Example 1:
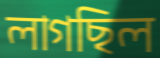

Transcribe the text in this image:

লাগছিল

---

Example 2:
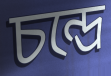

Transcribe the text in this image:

চন্দ্রে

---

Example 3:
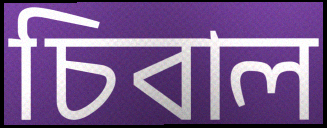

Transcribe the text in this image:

চিবাল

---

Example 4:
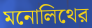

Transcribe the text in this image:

মনোলিথের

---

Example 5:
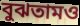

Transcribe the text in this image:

বুঝতামও